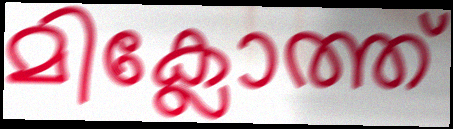
മിക്ലോത്ത്